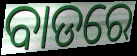
ବାଡରେ